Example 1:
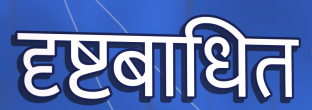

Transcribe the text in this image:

दृष्टबाधित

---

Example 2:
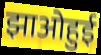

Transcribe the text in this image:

झाओहुई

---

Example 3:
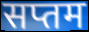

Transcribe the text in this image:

सप्तम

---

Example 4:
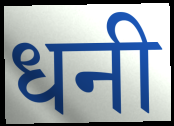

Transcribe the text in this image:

धनी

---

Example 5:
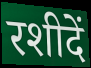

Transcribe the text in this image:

रशीदें